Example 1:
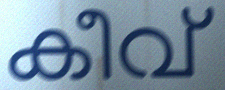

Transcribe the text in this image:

കീവ്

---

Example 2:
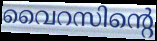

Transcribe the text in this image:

വൈറസിന്റെ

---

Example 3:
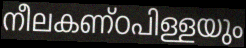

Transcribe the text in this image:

നീലകണ്ഠപിള്ളയും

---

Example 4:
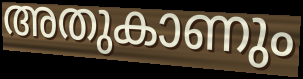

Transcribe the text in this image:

അതുകാണും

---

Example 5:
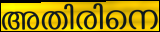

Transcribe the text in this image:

അതിരിനെ